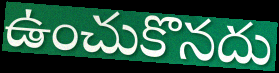
ఉంచుకొనదు